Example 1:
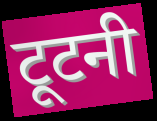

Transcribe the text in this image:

टूटनी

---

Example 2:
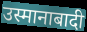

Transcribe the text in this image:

उस्मानाबादी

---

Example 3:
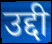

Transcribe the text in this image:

उद्दी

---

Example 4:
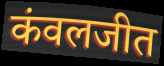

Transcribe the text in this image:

कंवलजीत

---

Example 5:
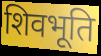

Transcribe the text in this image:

शिवभूति